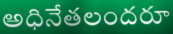
అధినేతలందరూ